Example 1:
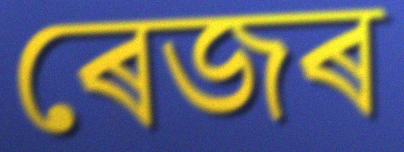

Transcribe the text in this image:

ৰেজৰ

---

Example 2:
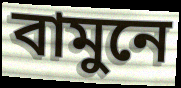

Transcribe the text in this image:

বামুনে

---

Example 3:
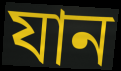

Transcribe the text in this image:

যান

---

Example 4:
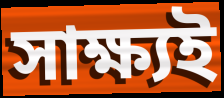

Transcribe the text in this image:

সাক্ষ্যই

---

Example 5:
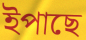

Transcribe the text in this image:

ইপাছে